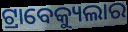
ଟ୍ରାବେକ୍ୟୁଲାର